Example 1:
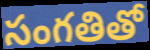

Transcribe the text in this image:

సంగతితో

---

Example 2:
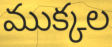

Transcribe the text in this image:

ముక్కల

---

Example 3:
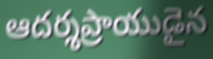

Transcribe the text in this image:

ఆదర్శప్రాయుడైన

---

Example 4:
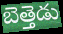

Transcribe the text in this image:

బెత్తెడు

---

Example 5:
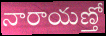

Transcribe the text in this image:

నారాయణ్తో